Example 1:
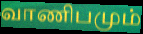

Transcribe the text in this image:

வாணிபமும்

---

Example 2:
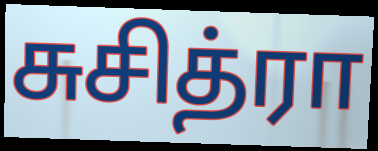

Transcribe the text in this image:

சுசித்ரா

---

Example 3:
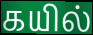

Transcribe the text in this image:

கயில்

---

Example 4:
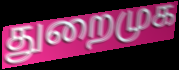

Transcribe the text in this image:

துறைமுக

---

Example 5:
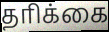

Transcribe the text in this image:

தரிக்கை